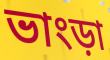
ভাংড়া